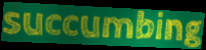
succumbing